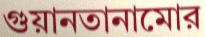
গুয়ানতানামোর